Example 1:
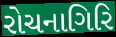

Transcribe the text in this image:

રોચનાગિરિ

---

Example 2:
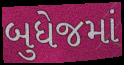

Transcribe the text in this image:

બુધેજમાં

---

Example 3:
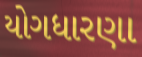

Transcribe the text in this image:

યોગધારણા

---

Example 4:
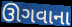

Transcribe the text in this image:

ઊગવાના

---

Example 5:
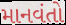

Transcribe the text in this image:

માનવંતો